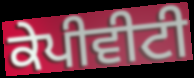
ਕੇਪੀਵੀਟੀ